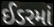
ઈડરમાં